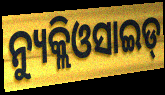
ନ୍ୟୁକ୍ଲିଓସାଇଡ୍